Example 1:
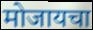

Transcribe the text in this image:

मोजायचा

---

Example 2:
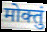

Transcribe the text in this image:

मोक्तुं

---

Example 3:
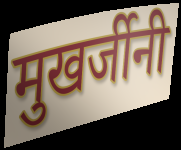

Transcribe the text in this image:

मुखर्जीनी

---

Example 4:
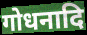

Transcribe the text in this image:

गोधनादि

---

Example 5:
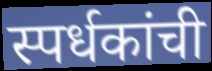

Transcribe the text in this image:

स्पर्धकांची